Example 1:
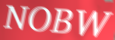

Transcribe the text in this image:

NOBW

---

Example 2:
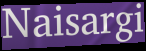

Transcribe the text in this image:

Naisargi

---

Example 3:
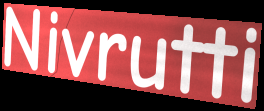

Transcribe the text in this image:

Nivrutti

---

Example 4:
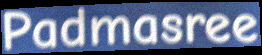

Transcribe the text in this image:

Padmasree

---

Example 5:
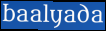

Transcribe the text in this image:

baalyada